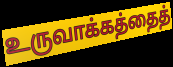
உருவாக்கத்தைத்